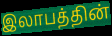
இலாபத்தின்